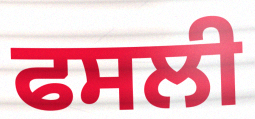
ਫਸਲੀ